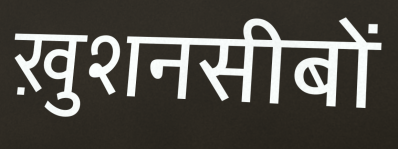
ख़ुशनसीबों